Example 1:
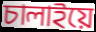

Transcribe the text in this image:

চালাইয়ে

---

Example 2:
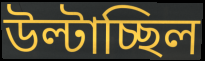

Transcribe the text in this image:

উল্টাচ্ছিল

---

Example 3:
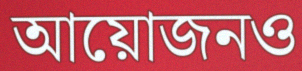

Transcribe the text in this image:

আয়োজনও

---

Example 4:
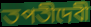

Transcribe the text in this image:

তপতীদেবী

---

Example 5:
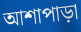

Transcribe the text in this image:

আশাপাড়া